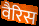
वैरिस